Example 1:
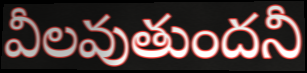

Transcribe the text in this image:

వీలవుతుందనీ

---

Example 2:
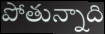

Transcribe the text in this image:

పోతున్నాది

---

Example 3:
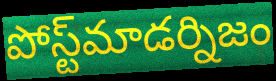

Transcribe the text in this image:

పోస్ట్‌మాడర్నిజం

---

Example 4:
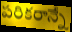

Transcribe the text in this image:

పరికరాన్నే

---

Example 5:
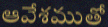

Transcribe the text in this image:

ఆవేశముతో